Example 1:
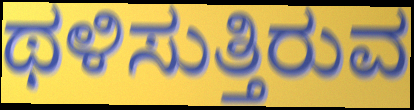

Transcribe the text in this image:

ಥಳಿಸುತ್ತಿರುವ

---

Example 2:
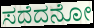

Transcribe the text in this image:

ಸದೆದನೋ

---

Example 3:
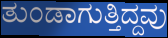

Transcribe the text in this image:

ತುಂಡಾಗುತ್ತಿದ್ದವು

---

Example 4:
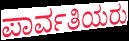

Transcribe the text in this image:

ಪಾರ್ವತಿಯರು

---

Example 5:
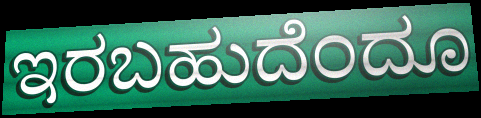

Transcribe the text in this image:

ಇರಬಹುದೆಂದೂ